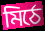
মিঠে